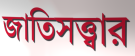
জাতিসত্ত্বার